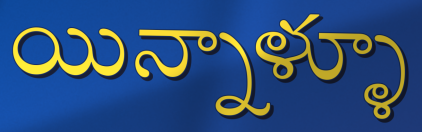
యిన్నాళ్ళూ